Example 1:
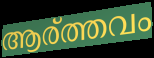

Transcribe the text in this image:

ആര്ത്തവം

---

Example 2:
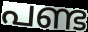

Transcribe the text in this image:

പണ്ട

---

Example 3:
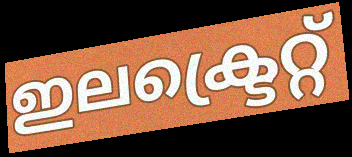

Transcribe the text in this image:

ഇലക്ട്രെറ്റ്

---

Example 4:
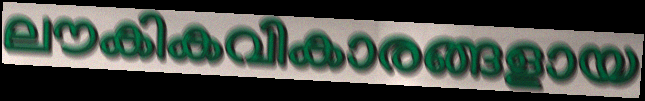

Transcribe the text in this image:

ലൗകികവികാരങ്ങളായ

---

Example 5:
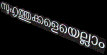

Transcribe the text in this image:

സുഹൃത്തുക്കളെയെല്ലാം